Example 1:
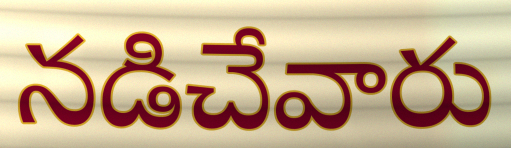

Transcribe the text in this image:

నడిచేవారు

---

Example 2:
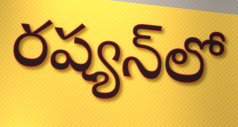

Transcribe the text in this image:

రష్యన్‌లో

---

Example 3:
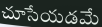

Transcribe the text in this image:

చూసేయడమే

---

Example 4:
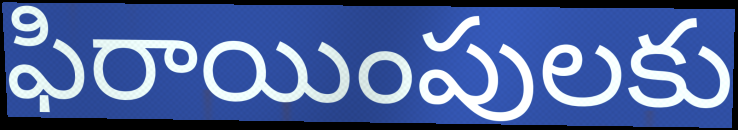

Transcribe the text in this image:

ఫిరాయింపులకు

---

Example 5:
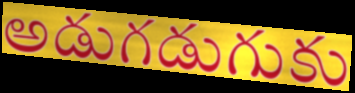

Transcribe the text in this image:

అడుగడుగుకు